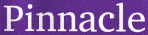
Pinnacle